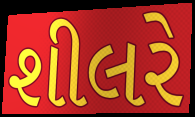
શીલરે